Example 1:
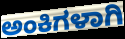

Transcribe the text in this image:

ಅಂಕಿಗಳಾಗಿ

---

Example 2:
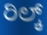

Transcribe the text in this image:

ರಿಲ್ಕ್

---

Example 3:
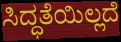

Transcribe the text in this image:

ಸಿದ್ಧತೆಯಿಲ್ಲದೆ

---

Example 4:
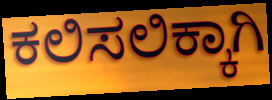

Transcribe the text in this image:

ಕಲಿಸಲಿಕ್ಕಾಗಿ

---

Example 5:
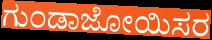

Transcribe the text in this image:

ಗುಂಡಾಜೋಯಿಸರ